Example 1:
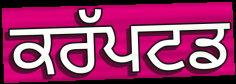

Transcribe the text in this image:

ਕਰੱਪਟਡ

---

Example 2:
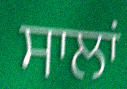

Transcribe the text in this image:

ਸਾਲਾਂ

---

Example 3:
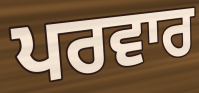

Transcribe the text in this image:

ਪਰਵਾਰ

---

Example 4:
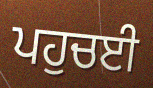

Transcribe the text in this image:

ਪਹੁਚਈ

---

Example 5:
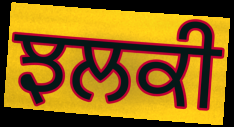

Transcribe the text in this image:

ਝਲਕੀ